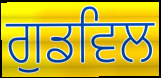
ਗੁਡਵਿਲ